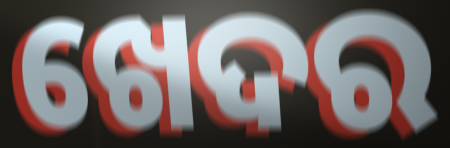
ଖେଦର